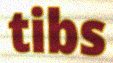
tibs